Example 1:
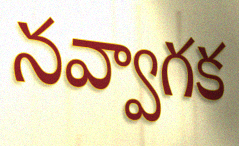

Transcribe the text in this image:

నవ్వాగక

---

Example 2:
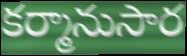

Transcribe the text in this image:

కర్మానుసార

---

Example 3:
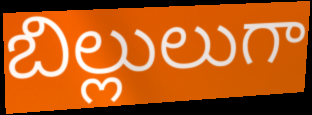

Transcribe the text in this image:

బిల్లులుగా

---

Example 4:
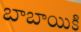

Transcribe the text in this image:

బాబాయికి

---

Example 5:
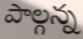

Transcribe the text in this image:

పాల్గన్న